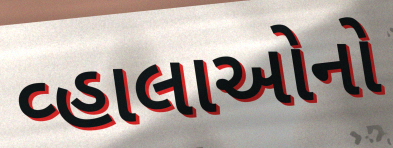
વ્હાલાઓનો